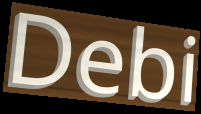
Debi